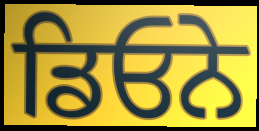
ਡਿਓਨੇ